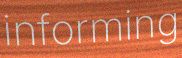
informing